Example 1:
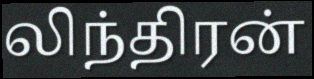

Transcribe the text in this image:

லிந்திரன்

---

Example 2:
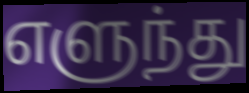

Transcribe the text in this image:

எளுந்து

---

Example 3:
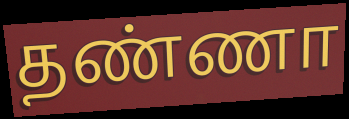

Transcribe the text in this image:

தண்ணா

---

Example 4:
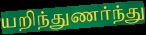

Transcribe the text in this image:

யறிந்துணர்ந்து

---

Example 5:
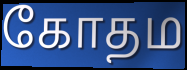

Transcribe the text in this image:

கோதம